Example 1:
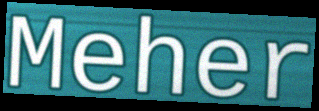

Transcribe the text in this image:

Meher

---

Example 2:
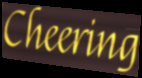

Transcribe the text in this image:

Cheering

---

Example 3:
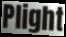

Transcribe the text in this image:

Plight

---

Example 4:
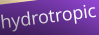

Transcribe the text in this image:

hydrotropic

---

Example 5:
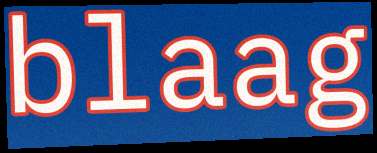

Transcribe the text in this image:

blaag